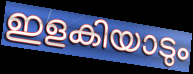
ഇളകിയാടും